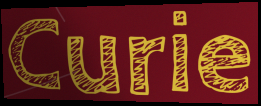
Curie